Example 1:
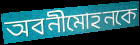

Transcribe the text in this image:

অবনীমোহনকে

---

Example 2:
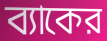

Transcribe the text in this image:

ব্যাকের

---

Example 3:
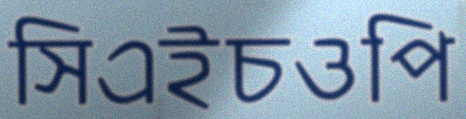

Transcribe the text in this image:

সিএইচওপি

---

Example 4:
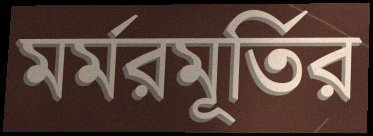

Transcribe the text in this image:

মর্মরমূর্তির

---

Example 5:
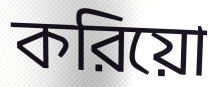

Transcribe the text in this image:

করিয়ো